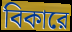
বিকারে